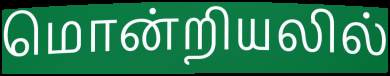
மொன்றியலில்